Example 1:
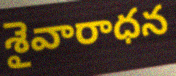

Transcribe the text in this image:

శైవారాధన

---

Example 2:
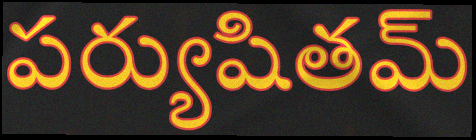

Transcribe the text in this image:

పర్యుషితమ్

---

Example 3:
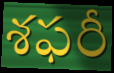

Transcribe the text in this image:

శఫరీ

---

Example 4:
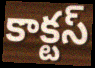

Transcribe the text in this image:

కాక్టస్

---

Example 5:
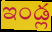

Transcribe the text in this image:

ఇండ్ల